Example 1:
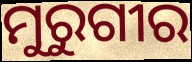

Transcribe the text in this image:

ମୁରୁଗୀର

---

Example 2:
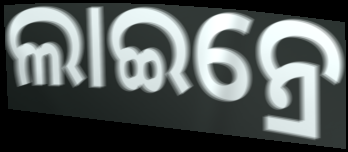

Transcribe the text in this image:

ଲାଇନ୍ରେ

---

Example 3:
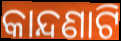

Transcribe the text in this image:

କାନ୍ଦଣାଟି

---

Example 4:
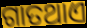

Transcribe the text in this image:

ଗାତଥାଏ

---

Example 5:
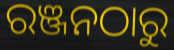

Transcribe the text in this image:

ରଞ୍ଜନଠାରୁ